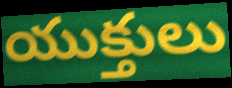
యుక్తులు